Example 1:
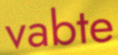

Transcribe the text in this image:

vabte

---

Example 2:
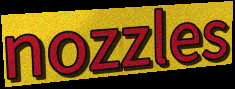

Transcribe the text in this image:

nozzles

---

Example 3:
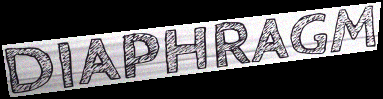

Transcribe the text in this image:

DIAPHRAGM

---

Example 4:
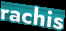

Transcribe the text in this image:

rachis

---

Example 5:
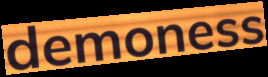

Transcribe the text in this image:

demoness